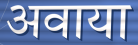
अवाया